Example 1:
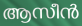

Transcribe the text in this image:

ആസീൻ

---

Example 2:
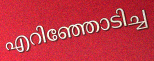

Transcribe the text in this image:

എറിഞ്ഞോടിച്ച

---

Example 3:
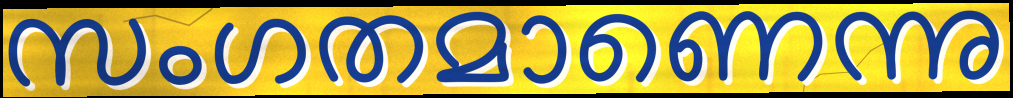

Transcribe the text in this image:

സംഗതമാണെന്നു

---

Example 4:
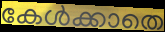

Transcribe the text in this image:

കേൾക്കാതെ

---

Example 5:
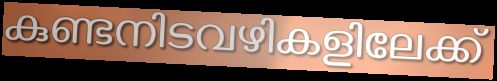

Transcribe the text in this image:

കുണ്ടനിടവഴികളിലേക്ക്